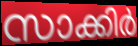
സാക്കിർ